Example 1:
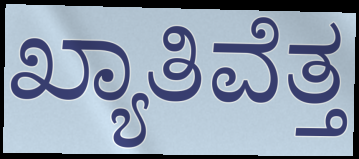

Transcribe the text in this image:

ಖ್ಯಾತಿವೆತ್ತ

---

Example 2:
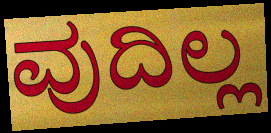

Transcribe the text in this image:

ವುದಿಲ್ಲ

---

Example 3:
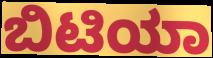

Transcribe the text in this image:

ಬಿಟಿಯಾ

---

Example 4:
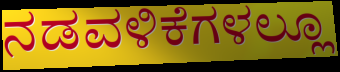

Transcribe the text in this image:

ನಡವಳಿಕೆಗಳಲ್ಲೂ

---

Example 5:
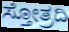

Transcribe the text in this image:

ಸ್ತೋತ್ರದಿ